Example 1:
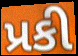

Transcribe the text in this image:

પ્રકી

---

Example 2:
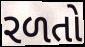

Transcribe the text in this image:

રળતો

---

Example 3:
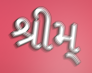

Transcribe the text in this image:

શ્રીમ્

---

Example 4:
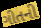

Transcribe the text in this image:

ગીતની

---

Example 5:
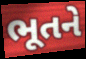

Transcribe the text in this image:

ભૂતને